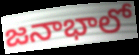
జనాభాలో